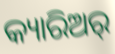
କ୍ୟାରିଅର୍